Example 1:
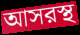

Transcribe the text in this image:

আসরস্থ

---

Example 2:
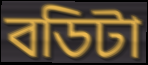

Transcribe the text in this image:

বডিটা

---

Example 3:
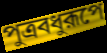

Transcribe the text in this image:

পুত্রবধুরূপে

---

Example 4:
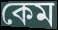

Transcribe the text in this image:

কেম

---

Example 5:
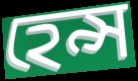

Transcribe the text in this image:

হেন্স